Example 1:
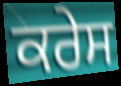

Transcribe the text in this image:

ਕਰੇਸ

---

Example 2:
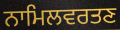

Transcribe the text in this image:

ਨਾਮਿਲਵਰਤਣ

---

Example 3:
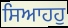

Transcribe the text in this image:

ਸਿਆਹਹੁ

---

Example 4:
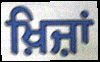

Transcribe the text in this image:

ਖ਼ਿਜ਼ਾਂ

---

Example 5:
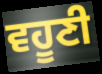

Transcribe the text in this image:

ਵਹੂਣੀ